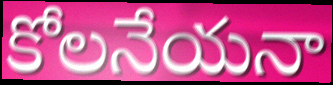
కోలనేయనా